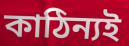
কাঠিন্যই